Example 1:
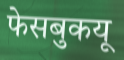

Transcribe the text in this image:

फेसबुकयू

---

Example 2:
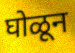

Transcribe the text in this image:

घोळून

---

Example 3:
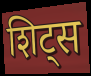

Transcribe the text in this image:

शिट्स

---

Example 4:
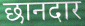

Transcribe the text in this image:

छानदार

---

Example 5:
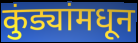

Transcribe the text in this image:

कुंड्यांमधून